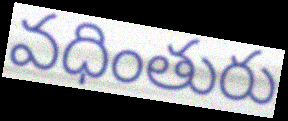
వధింతురు